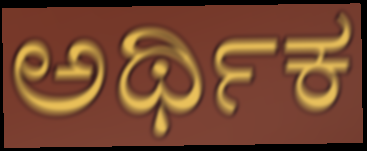
ಅರ್ಥಿಕ